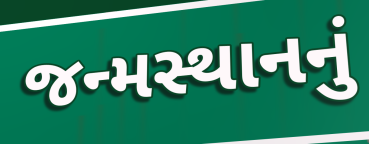
જન્મસ્થાનનું